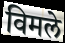
विमले